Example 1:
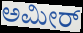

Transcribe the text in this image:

ಅಮೀರ್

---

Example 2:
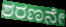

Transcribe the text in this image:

ಶರಣನೇ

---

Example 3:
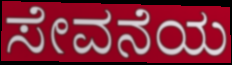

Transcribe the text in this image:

ಸೇವನೆಯ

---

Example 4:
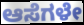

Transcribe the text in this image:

ಆಸೆಗಳೇ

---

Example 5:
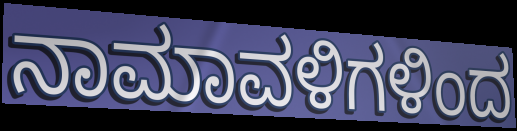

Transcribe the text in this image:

ನಾಮಾವಳಿಗಳಿಂದ